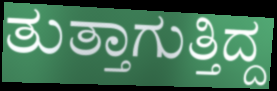
ತುತ್ತಾಗುತ್ತಿದ್ದ